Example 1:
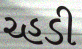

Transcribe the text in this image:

ચ્હડી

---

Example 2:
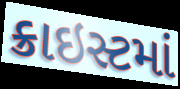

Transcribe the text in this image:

ક્રાઇસ્ટમાં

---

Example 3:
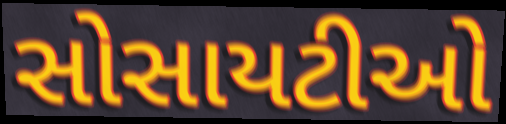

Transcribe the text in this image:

સોસાયટીઓ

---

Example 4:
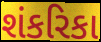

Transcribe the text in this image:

શંકરિકા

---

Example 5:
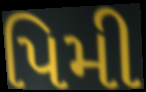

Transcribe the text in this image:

પિમી